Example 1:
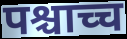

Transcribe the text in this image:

पश्चाच्च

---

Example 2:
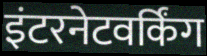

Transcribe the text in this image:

इंटरनेटवर्किंग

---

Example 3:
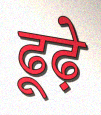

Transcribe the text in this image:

ढूढ़े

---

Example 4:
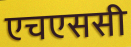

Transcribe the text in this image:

एचएससी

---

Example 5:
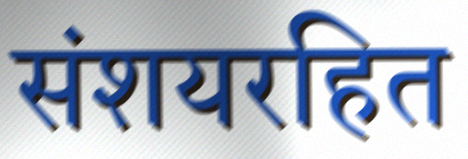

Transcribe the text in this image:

संशयरहित